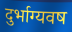
दुर्भाग्यवष